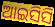
ଆଇସିସି